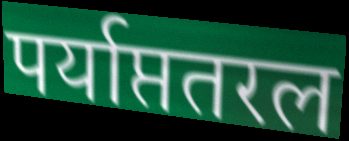
पर्याप्ततरल